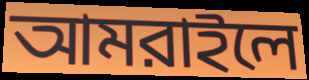
আমরাইলে